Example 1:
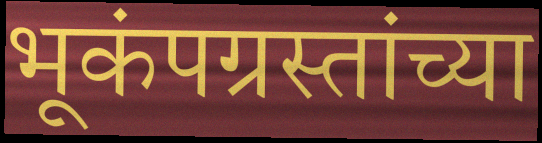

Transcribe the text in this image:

भूकंपग्रस्तांच्या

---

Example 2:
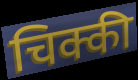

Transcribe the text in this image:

चिक्की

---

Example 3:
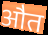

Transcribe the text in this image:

औत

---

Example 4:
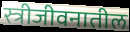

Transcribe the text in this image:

स्त्रीजीवनातील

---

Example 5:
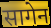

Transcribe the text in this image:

सागेन